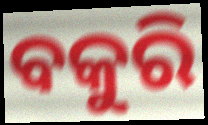
ବକୁରି